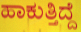
ಹಾಕುತ್ತಿದ್ದೆ